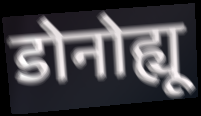
डोनोह्यू